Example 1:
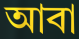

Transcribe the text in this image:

আবা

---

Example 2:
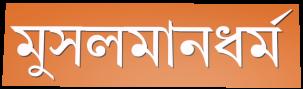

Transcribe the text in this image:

মুসলমানধর্ম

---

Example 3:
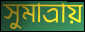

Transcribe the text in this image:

সুমাত্রায়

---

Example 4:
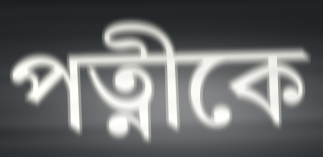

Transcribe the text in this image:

পত্নীকে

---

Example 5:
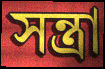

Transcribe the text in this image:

সন্ত্রা